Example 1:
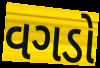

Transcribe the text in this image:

વગડો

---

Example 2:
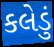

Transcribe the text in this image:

કલેડું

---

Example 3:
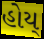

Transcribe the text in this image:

હોય્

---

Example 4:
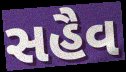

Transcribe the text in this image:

સહૈવ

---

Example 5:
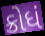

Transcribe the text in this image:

ક્રોધં